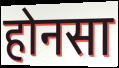
होनसा